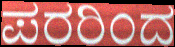
ಪರರಿಂದ